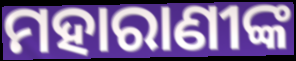
ମହାରାଣୀଙ୍କ